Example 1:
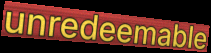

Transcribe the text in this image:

unredeemable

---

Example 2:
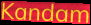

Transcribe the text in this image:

Kandam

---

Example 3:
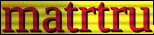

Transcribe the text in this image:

matrtru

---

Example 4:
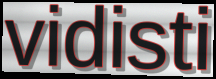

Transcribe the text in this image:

vidisti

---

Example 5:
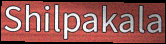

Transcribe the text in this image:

Shilpakala